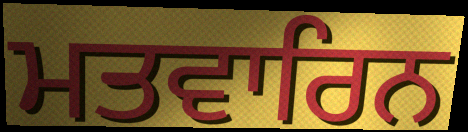
ਮਤਵਾਰਿਨ